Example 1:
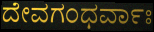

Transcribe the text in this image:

ದೇವಗಂಧರ್ವಾಃ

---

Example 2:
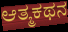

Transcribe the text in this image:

ಆತ್ಮಕಥನ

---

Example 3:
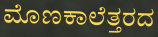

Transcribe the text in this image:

ಮೊಣಕಾಲೆತ್ತರದ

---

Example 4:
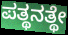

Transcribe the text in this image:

ಪತ್ಥನತ್ಥೇ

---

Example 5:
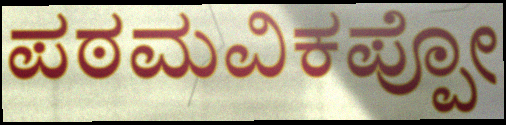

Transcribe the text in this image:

ಪಠಮವಿಕಪ್ಪೋ